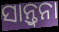
ସାନ୍ତ୍ଵନା